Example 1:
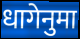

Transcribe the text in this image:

धागेनुमा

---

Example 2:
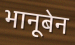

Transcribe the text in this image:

भानूबेन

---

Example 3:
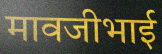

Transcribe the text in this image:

मावजीभाई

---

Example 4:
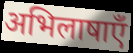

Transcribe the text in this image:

अभिलाषाएँ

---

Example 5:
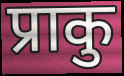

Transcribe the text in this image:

प्राकु